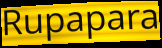
Rupapara